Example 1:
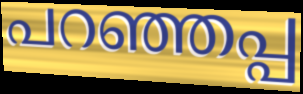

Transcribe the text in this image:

പറഞ്ഞപ്പ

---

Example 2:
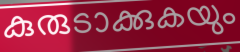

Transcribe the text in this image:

കുരുടാക്കുകയും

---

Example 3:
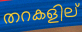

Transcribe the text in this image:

തറകളില്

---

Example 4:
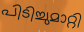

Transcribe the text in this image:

പിടിച്ചുമാറ്റി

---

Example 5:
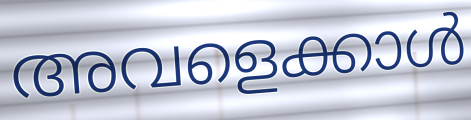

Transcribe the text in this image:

അവളെക്കാൾ